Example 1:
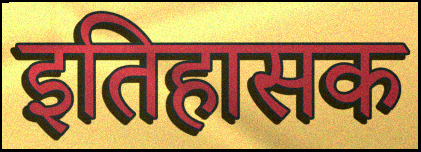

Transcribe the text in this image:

इतिहासक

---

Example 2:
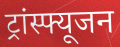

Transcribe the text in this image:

ट्रांस्फ्यूजन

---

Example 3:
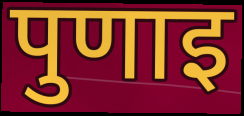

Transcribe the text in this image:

पुणाइ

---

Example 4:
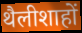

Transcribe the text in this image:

थैलीशाहों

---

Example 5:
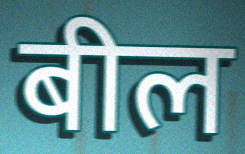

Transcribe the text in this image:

बील